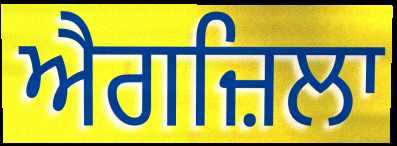
ਐਗਜ਼ਿਲਾ